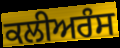
ਕਲੀਅਰੰਸ